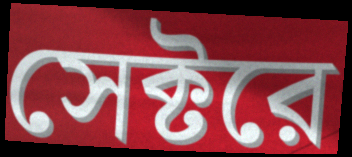
সেক্টরে